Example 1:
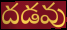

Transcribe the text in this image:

దడవు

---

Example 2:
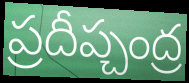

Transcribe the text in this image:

ప్రదీప్చంద్ర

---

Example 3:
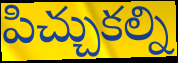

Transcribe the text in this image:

పిచ్చుకల్ని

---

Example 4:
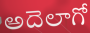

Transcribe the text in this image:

అదెలాగో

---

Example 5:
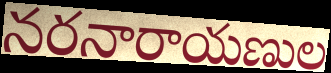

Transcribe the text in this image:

నరనారాయణుల